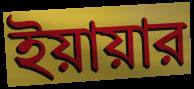
ইয়ায়ার